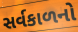
સર્વકાળનો